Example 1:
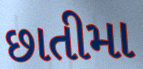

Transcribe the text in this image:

છાતીમા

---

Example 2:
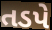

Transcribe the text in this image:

તડપે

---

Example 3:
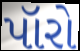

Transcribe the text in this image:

પૉરો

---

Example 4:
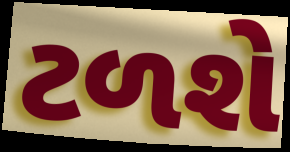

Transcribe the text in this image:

ટળશે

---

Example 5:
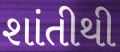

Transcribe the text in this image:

શાંતીથી